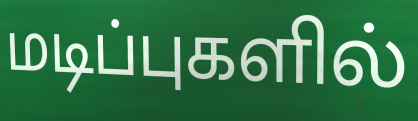
மடிப்புகளில்